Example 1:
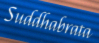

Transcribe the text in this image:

Suddhabrata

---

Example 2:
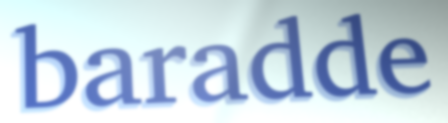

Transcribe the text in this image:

baradde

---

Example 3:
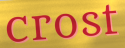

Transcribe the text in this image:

crost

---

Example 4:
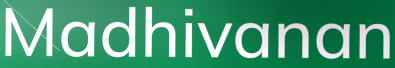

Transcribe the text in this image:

Madhivanan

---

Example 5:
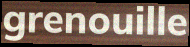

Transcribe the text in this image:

grenouille